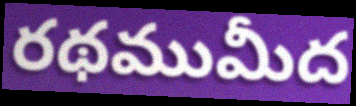
రథముమీద